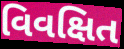
વિવક્ષિત